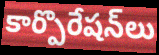
కార్పొరేషన్‌లు